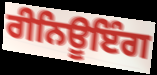
ਰੀਨਿਊਇੰਗ